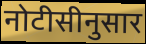
नोटीसीनुसार